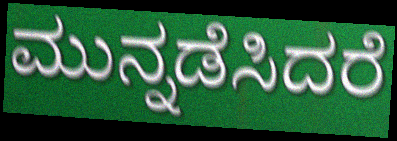
ಮುನ್ನಡೆಸಿದರೆ